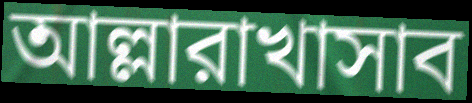
আল্লারাখাসাব